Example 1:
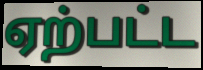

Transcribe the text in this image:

ஏற்பட்ட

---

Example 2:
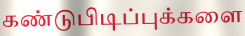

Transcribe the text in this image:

கண்டுபிடிப்புக்களை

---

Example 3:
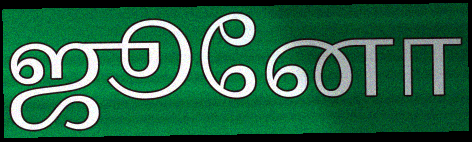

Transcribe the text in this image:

ஜூனோ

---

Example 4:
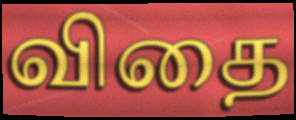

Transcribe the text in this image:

விதை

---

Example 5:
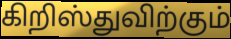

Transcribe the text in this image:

கிறிஸ்துவிற்கும்